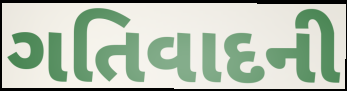
ગતિવાદની